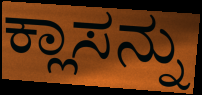
ಕ್ಲಾಸನ್ನು